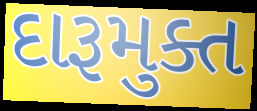
દારૂમુક્ત